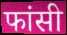
फांसी